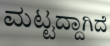
ಮಟ್ಟದ್ದಾಗಿದೆ